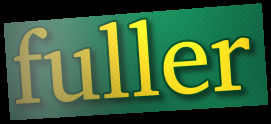
fuller